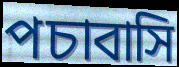
পচাবাসি